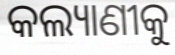
କଲ୍ୟାଣୀକୁ